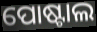
ପୋଷ୍ଟାଲ